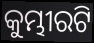
କୁମ୍ଭୀରଟି